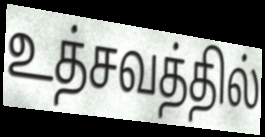
உத்சவத்தில்